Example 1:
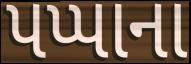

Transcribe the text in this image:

પપ્પાના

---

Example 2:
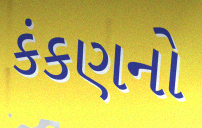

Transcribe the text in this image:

કંકણનો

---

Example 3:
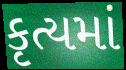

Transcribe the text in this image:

કૃત્યમાં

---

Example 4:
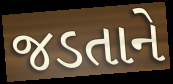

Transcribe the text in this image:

જડતાને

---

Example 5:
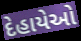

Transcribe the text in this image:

દેહાયેઓ